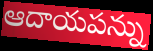
ఆదాయపన్ను